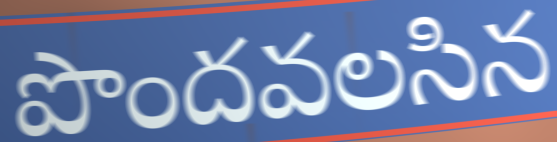
పొందవలసిన